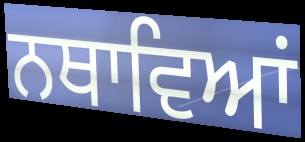
ਨਥਾਵਿਆਂ